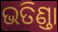
ଭତିଣ୍ଡା